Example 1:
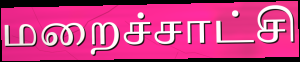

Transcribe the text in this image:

மறைச்சாட்சி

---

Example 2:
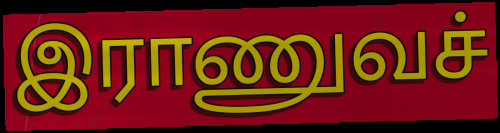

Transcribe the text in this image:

இராணுவச்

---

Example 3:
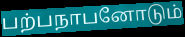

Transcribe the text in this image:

பற்பநாபனோடும்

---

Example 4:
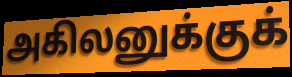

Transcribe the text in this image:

அகிலனுக்குக்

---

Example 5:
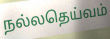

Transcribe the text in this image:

நல்லதெய்வம்